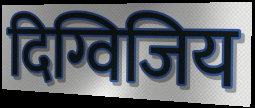
दिग्विजिय